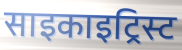
साइकाइट्रिस्ट